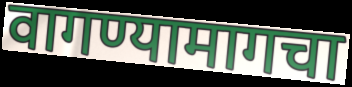
वागण्यामागचा